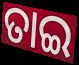
ତାଇ